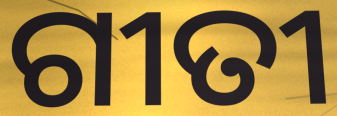
ଗୀତୀ